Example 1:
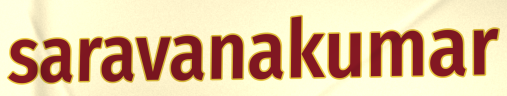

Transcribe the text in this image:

saravanakumar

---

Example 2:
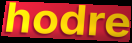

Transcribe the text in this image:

hodre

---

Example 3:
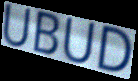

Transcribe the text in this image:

UBUD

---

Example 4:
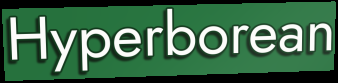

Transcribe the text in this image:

Hyperborean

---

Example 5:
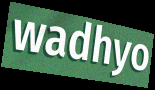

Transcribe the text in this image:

wadhyo